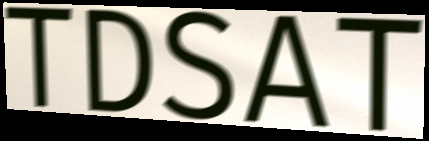
TDSAT